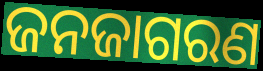
ଜନଜାଗରଣ